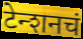
टेन्शनचं